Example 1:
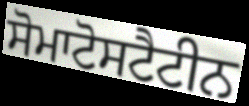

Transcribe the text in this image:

ਸੋਮਾਟੋਸਟੈਟੀਨ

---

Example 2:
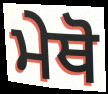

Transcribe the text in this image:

ਮੇਥੋ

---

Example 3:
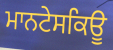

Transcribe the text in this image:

ਮਾਨਟੇਸਕਿਊ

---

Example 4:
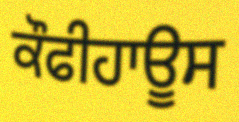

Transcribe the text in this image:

ਕੌਫੀਹਾਊਸ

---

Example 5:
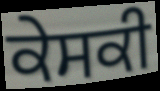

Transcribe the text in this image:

ਕੇਸਕੀ